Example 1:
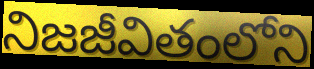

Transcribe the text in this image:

నిజజీవితంలోని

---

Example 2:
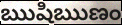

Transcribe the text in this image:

ఋషిఋణం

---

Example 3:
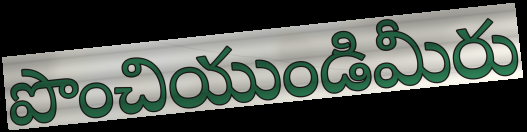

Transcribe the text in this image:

పొంచియుండిమీరు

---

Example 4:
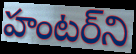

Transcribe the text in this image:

హంటర్‌ని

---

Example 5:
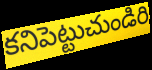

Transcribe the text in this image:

కనిపెట్టుచుండిరి